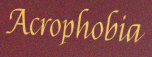
Acrophobia